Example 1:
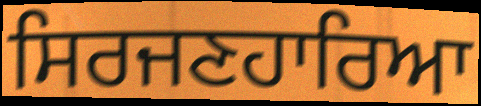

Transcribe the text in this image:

ਸਿਰਜਣਹਾਰਿਆ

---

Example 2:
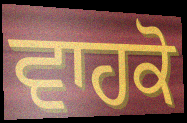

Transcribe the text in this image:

ਵਾਹਕੋ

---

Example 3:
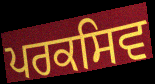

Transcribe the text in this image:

ਪਰਕਸਿਵ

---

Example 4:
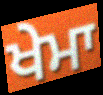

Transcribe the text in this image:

ਖੇਮਾ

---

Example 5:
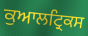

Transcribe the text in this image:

ਕੁਆਲਟ੍ਰਿਕਸ